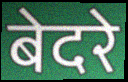
बेदरे